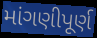
માંગણીપૂર્ણ